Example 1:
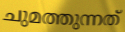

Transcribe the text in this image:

ചുമത്തുന്നത്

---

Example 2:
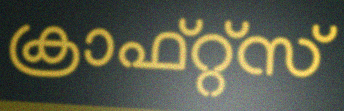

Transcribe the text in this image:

ക്രാഫ്റ്റ്സ്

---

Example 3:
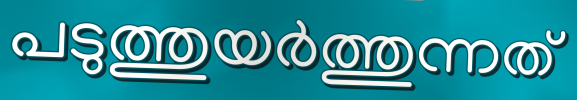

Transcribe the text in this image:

പടുത്തുയർത്തുന്നത്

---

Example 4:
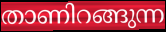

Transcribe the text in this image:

താണിറങ്ങുന്ന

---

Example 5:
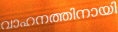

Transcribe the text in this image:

വാഹനത്തിനായി